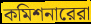
কমিশনারেরা